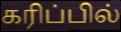
கரிப்பில்